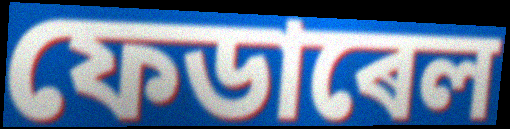
ফেডাৰেল